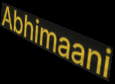
Abhimaani